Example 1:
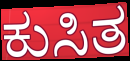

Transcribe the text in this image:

ಕುಸಿತ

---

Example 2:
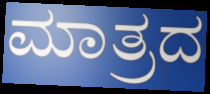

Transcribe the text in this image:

ಮಾತ್ರದ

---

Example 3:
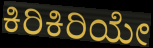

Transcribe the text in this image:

ಕಿರಿಕಿರಿಯೇ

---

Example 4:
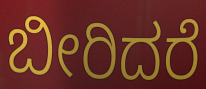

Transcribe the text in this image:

ಬೀರಿದರೆ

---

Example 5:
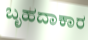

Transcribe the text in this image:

ಬೃಹದಾಕಾರ